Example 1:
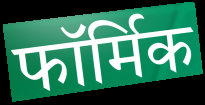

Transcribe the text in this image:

फॉर्मिक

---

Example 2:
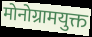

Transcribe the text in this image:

मोनोग्रामयुक्त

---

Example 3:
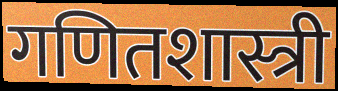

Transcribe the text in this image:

गणितशास्त्री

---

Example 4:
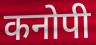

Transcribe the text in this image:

कनोपी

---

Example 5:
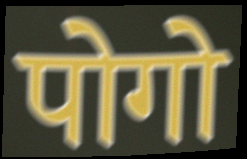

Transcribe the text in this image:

पोगो